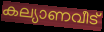
കല്യാണവീട്